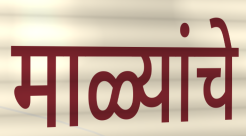
माळ्यांचे